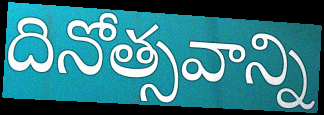
దినోత్సవాన్ని